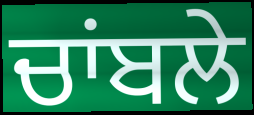
ਚਾਂਬਲੇ